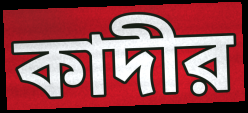
কাদীর